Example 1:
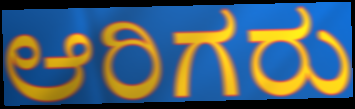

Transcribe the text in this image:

ಆರಿಗರು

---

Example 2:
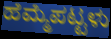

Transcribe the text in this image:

ಹೆಮ್ಮೆಪಟ್ಟಳು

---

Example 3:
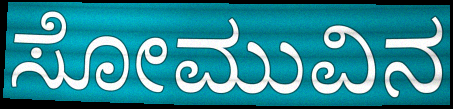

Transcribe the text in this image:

ಸೋಮುವಿನ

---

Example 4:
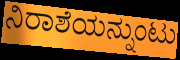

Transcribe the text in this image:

ನಿರಾಶೆಯನ್ನುಂಟು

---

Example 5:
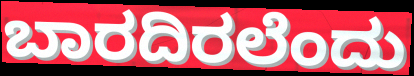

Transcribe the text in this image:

ಬಾರದಿರಲೆಂದು